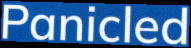
Panicled